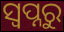
ସ୍ବପ୍ନରୁ